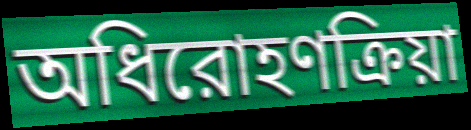
অধিরোহণক্রিয়া